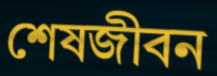
শেষজীবন